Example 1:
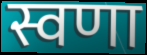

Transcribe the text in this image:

स्वणा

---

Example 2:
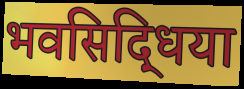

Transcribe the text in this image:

भवसिद्धिया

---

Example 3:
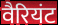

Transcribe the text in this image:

वैरियंट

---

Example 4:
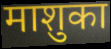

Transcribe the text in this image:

माशुका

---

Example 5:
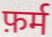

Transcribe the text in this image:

फ़र्म